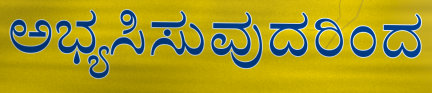
ಅಭ್ಯಸಿಸುವುದರಿಂದ